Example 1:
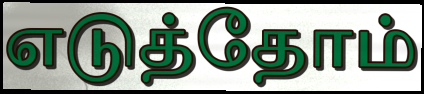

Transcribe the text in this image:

எடுத்தோம்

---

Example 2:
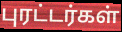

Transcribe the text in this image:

புரட்டர்கள்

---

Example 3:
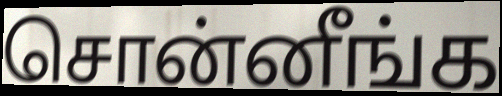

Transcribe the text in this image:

சொன்னீங்க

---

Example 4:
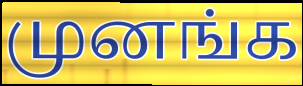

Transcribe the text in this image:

முனங்க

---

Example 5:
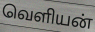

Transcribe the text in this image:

வெளியன்